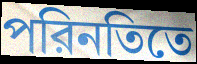
পরিনতিতে